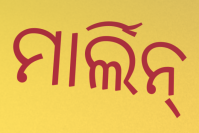
ମାର୍ଲିନ୍